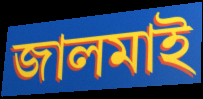
জালমাই